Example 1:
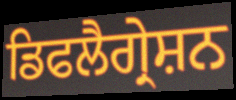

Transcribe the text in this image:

ਡਿਫਲੈਗ੍ਰੇਸ਼ਨ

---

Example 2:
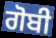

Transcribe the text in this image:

ਗੋਬੀ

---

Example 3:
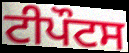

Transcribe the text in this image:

ਟੀਪੌਟਸ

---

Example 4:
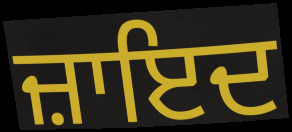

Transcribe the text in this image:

ਜ਼ਾਇਦ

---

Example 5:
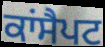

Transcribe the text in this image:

ਕਾਂਸੈਪਟ